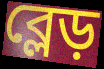
ব্লেড়